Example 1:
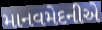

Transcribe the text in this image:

માનવમેદનીએ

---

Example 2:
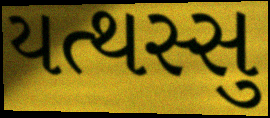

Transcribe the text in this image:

યત્થસ્સુ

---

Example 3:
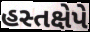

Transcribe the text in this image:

હસ્તક્ષેપે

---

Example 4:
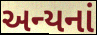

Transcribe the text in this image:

અન્યનાં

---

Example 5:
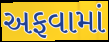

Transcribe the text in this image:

અફવામાં